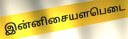
இன்னிசையளபெடை